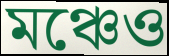
মঞ্চেও